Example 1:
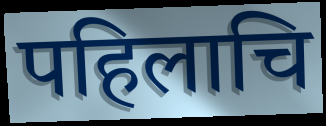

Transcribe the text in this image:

पहिलाचि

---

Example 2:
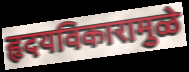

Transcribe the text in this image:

हृदयविकारामुळे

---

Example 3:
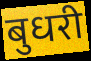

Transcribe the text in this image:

बुधरी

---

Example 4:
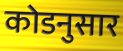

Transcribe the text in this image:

कोडनुसार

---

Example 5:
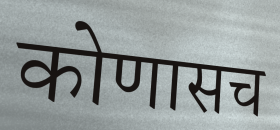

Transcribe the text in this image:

कोणासच